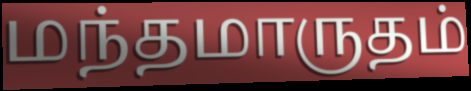
மந்தமாருதம்